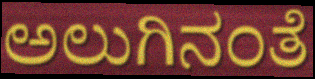
ಅಲುಗಿನಂತೆ